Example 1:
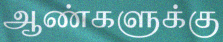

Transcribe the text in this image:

ஆண்களுக்கு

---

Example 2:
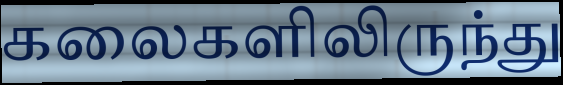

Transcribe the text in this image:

கலைகளிலிருந்து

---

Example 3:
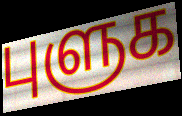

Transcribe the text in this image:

புளுக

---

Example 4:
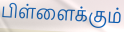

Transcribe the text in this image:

பிள்ளைக்கும்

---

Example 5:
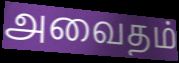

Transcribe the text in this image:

அவைதம்